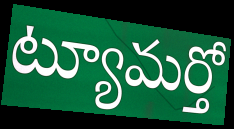
ట్యూమర్తో